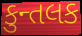
કુન્તલક